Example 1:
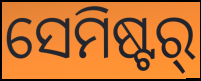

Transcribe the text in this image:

ସେମିଷ୍ଟର୍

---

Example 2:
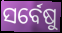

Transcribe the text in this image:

ସର୍ବେଷୁ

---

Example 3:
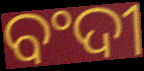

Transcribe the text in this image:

ବଂଦୀ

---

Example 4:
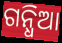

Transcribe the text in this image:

ଗନ୍ଧିଆ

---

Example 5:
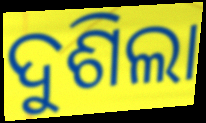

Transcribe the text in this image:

ଦୁଶିଲା